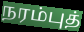
நரம்புத்